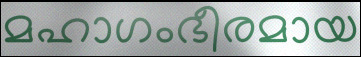
മഹാഗംഭീരമായ